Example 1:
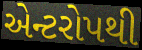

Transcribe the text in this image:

એન્ટરોપથી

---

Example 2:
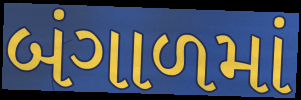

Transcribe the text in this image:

બંગાળમાં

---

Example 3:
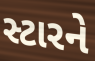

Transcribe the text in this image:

સ્ટારને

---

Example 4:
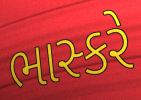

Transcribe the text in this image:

ભાસ્કરે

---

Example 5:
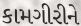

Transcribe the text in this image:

કામગીરીને